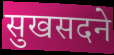
सुखसदने